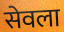
सेवला